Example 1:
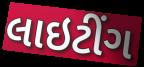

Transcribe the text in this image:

લાઇટીંગ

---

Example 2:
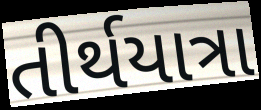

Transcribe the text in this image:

તીર્થયાત્રા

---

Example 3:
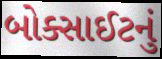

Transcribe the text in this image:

બોક્સાઈટનું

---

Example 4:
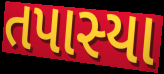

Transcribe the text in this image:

તપાસ્યા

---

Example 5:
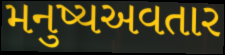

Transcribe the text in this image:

મનુષ્યઅવતાર